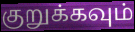
குறுக்கவும்